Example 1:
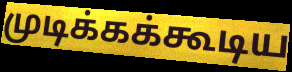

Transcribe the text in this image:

முடிக்கக்கூடிய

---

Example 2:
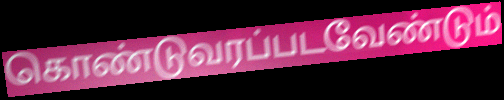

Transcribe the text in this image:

கொண்டுவரப்படவேண்டும்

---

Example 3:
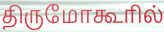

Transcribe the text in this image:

திருமோகூரில்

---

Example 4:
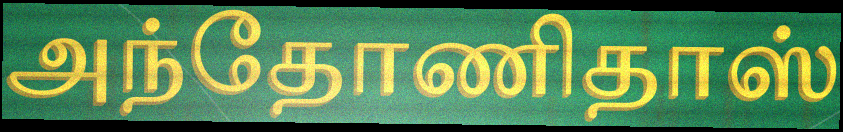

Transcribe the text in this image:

அந்தோணிதாஸ்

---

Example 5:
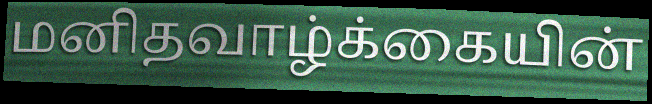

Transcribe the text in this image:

மனிதவாழ்க்கையின்